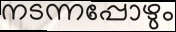
നടന്നപ്പോഴും